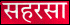
सहरसा